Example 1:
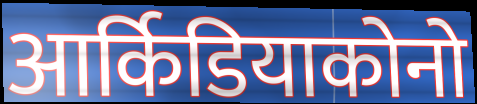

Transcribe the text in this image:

आर्किडियाकोनो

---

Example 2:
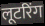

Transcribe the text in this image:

लूटरिंग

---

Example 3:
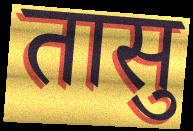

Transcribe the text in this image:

तासु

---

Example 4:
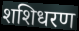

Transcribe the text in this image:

शशिधरण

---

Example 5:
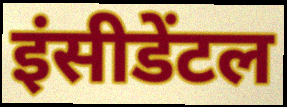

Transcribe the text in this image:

इंसीडेंटल